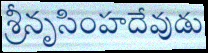
శ్రీనృసింహదేవుడు